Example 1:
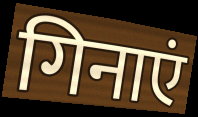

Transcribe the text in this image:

गिनाएं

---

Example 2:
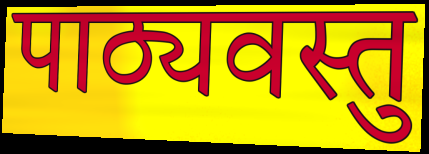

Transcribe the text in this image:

पाठ्यवस्तु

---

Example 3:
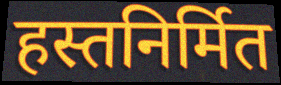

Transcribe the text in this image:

हस्तनिर्मित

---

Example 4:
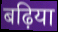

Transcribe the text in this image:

बढ़िया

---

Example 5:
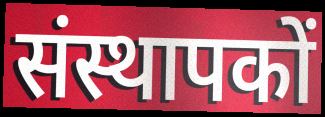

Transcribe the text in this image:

संस्थापकों